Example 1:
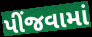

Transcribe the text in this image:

પીંજવામાં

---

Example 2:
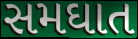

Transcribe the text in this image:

સમઘાત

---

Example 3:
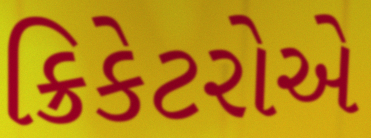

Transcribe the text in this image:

ક્રિકેટરોએ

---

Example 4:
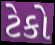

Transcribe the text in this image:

ટેકો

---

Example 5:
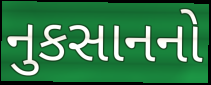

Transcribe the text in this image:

નુકસાનનો